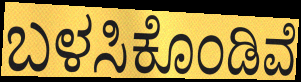
ಬಳಸಿಕೊಂಡಿವೆ